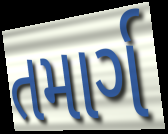
તમાર્ગ